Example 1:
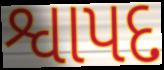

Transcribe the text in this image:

શ્વાપદ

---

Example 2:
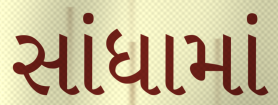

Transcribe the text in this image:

સાંધામાં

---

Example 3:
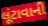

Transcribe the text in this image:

લૂંટાવાની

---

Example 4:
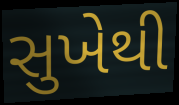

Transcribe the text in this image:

સુખેથી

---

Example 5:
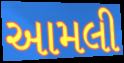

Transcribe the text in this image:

આમલી